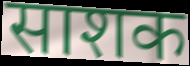
साशक